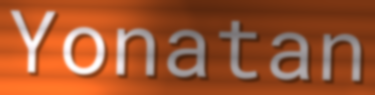
Yonatan